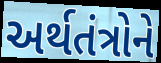
અર્થતંત્રોને